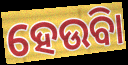
ହେଉିବା